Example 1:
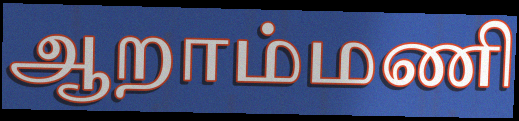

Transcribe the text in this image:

ஆறாம்மணி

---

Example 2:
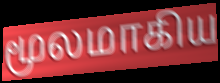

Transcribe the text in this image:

மூலமாகிய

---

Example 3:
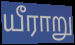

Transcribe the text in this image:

யீராறு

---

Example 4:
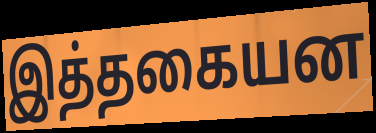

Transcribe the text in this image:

இத்தகையன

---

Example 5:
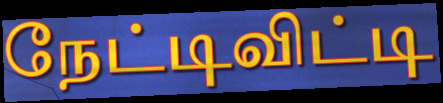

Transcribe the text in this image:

நேட்டிவிட்டி